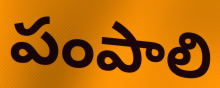
పంపాలి